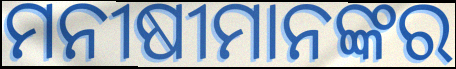
ମନୀଷୀମାନଙ୍କର